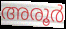
അരൂർ